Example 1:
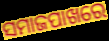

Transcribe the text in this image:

ସମାଜପାଖରେ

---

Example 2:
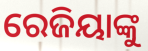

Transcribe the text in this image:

ରେଜିୟାଙ୍କୁ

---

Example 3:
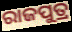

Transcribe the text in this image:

ରାଜପୁତ୍ର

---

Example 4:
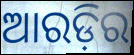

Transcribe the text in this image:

ଆରଡ଼ିର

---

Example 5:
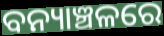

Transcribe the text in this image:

ବନ୍ୟାଞ୍ଚଳରେ